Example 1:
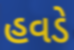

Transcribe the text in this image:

હવડે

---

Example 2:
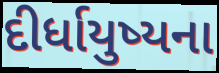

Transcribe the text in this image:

દીર્ધાયુષ્યના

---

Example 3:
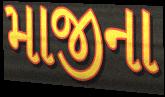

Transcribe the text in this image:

માજીના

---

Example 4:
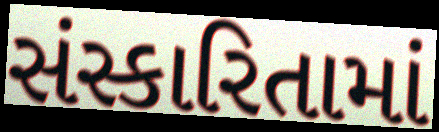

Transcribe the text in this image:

સંસ્કારિતામાં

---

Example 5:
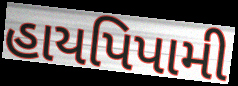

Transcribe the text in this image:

હાયપિપામી